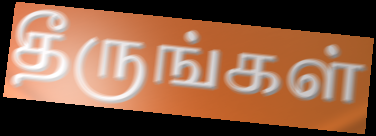
தீருங்கள்